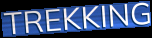
TREKKING